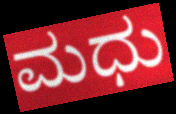
ಮಧು